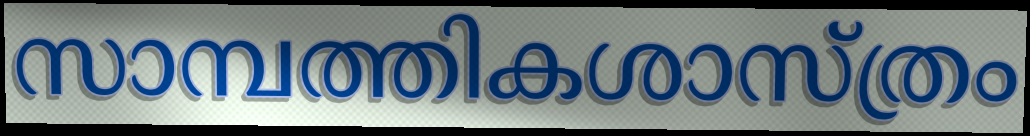
സാമ്പത്തികശാസ്ത്രം